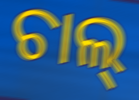
ଚାଲ୍